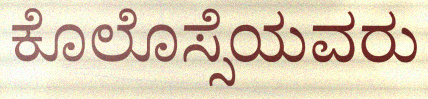
ಕೊಲೊಸ್ಸೆಯವರು